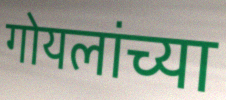
गोयलांच्या